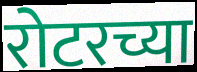
रोटरच्या